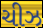
ચીઝ